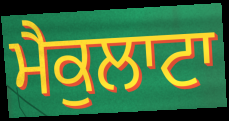
ਮੈਕੁਲਾਟਾ